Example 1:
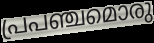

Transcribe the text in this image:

പ്രപഞ്ചമൊരു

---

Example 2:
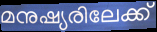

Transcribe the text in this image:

മനുഷ്യരിലേക്ക്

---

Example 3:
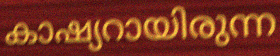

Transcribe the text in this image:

കാഷ്യറായിരുന്ന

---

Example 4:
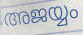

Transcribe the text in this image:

അജയ്യം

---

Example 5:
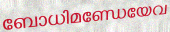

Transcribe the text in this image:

ബോധിമണ്ഡേയേവ